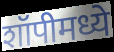
शॉपीमध्ये